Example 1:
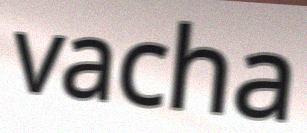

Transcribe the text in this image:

vacha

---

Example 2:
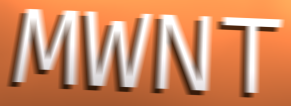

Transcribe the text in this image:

MWNT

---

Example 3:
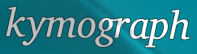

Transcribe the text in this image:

kymograph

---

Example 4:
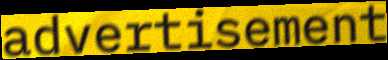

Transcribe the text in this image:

advertisement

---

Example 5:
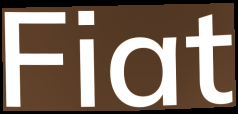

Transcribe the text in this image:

Fiat